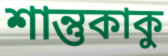
শান্তুকাকু